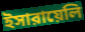
ইসারায়েলি